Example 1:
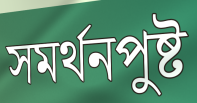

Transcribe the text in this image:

সমর্থনপুষ্ট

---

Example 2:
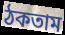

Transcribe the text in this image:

ঠকতাম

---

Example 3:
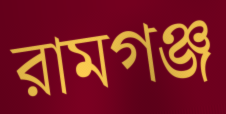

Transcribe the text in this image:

রামগঞ্জ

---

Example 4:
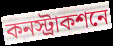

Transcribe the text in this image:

কনস্ট্রাকশনে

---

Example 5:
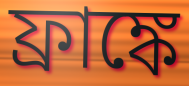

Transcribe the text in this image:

ফ্রাঙ্কে